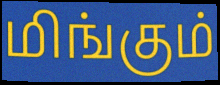
மிங்கும்